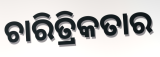
ଚାରିତ୍ରିକତାର